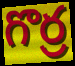
గొర్ర